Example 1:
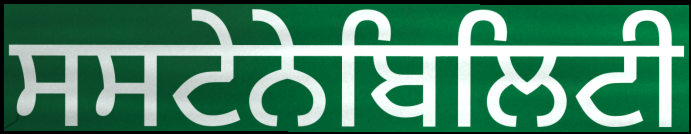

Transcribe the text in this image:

ਸਸਟੇਨੇਬਿਲਿਟੀ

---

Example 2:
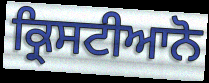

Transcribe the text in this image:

ਕ੍ਰਿਸਟੀਆਨੋ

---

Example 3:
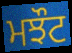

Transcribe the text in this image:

ਮਝੌਟ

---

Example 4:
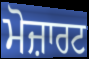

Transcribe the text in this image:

ਮੋਜ਼ਾਰਟ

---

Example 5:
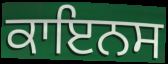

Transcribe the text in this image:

ਕਾਇਨਸ